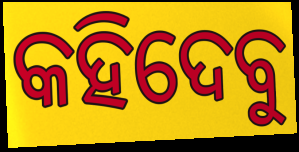
କହିଦେବୁ